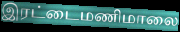
இரட்டைமணிமாலை